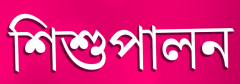
শিশুপালন